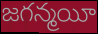
జగన్మయీ